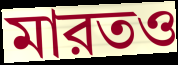
মারতও